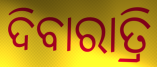
ଦିବାରାତ୍ରି